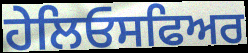
ਹੇਲਿਓਸਫਿਅਰ